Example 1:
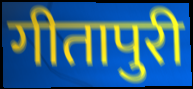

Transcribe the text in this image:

गीतापुरी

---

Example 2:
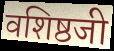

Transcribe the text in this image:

वशिष्ठजी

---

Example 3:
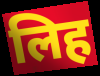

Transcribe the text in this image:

लिह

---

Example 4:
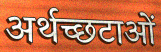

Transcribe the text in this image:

अर्थच्छटाओं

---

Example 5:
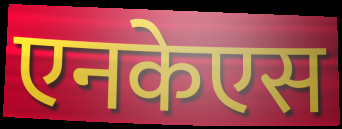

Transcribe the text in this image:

एनकेएस